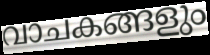
വാചകങ്ങളും